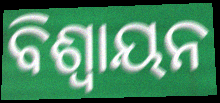
ବିଶ୍ଵାୟନ